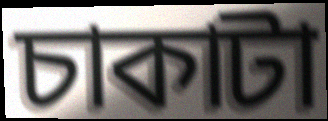
চাকাটা